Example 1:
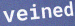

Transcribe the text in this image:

veined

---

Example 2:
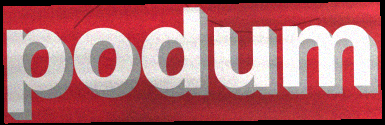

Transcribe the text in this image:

podum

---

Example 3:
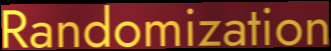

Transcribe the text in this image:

Randomization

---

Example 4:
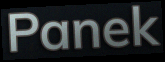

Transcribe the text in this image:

Panek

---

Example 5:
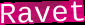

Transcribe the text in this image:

Ravet